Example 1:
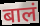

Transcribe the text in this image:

बालं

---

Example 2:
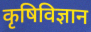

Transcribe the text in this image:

कृषिविज्ञान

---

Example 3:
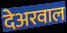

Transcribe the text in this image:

देअरवाल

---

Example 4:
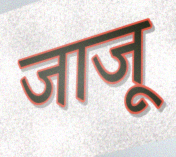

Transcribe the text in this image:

जाजू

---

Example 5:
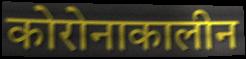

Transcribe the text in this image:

कोरोनाकालीन